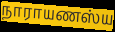
நாராயணஸ்ய